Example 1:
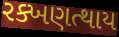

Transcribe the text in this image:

રક્ખણત્થાય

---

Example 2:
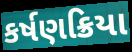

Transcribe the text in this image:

કર્ષણક્રિયા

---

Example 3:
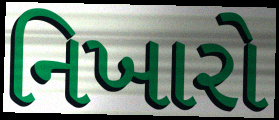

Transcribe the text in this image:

નિખારો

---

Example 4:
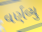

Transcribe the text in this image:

વર્ણવ્યુ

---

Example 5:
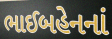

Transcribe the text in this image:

ભાઈબહેનનાં